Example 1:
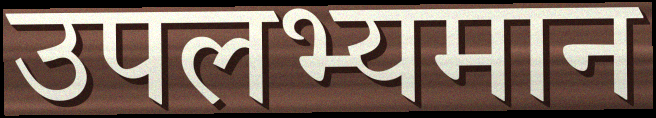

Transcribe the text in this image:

उपलभ्यमान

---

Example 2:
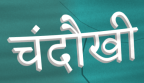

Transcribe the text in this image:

चंदौखी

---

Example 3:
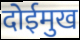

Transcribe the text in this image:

दोईमुख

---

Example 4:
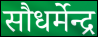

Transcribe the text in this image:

सौधर्मेन्द्र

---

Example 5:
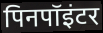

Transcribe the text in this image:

पिनपॉइंटर